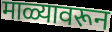
माळ्यावरून